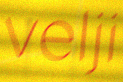
velji